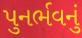
પુનર્ભવનું